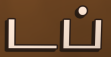
டப்